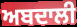
ਅਬਦਾਲੀ